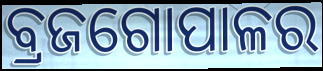
ବ୍ରଜଗୋପାଳର